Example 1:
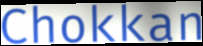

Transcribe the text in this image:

Chokkan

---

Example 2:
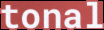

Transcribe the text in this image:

tonal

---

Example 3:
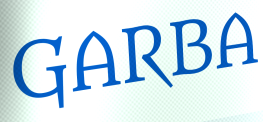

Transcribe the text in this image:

GARBA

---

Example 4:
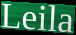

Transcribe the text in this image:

Leila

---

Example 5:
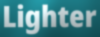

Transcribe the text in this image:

Lighter